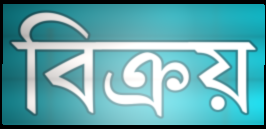
বিক্ৰয়